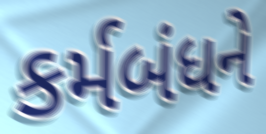
કર્મબંધને